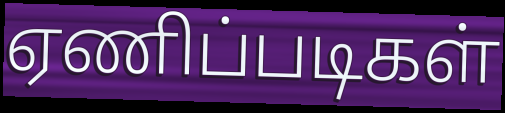
ஏணிப்படிகள்